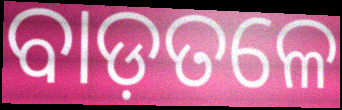
ବାଡ଼ତଳେ